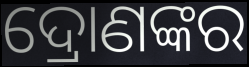
ଦ୍ରୋଣଙ୍କର